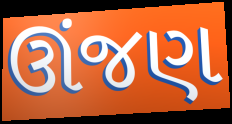
ઊંજણ